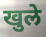
खुले